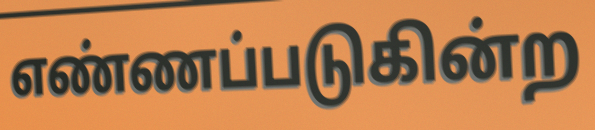
எண்ணப்படுகின்ற